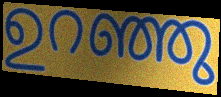
ഉറഞ്ഞു